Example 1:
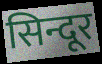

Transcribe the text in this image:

सिन्दूर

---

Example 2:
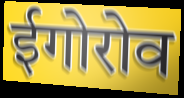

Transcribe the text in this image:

ईगोरोव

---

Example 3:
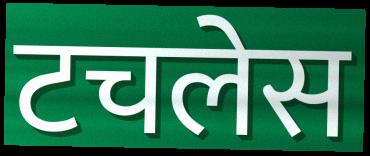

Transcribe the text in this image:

टचलेस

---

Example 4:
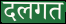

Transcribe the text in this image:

दलगत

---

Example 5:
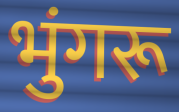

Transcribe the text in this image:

भुंगरू